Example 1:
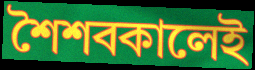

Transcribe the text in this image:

শৈশবকালেই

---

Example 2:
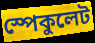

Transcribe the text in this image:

স্পেকুলেট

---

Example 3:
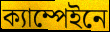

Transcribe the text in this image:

ক্যাম্পেইনে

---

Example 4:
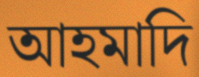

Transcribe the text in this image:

আহমাদি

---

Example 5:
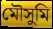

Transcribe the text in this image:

মৌসুমি